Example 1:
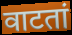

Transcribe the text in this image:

वाटतां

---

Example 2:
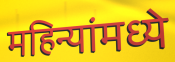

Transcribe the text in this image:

महिन्यांमध्ये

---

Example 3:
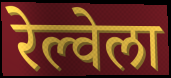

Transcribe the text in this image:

रेल्वेला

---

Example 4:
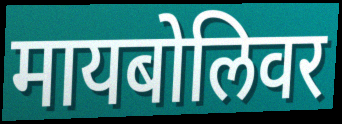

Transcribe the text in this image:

मायबोलिवर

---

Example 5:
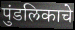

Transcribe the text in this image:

पुंडलिकाचे